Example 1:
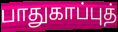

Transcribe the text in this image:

பாதுகாப்புத்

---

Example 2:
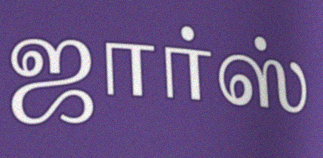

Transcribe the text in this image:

ஜார்ஸ்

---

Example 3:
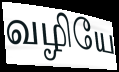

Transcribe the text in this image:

வழியே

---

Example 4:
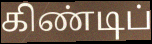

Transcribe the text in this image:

கிண்டிப்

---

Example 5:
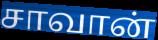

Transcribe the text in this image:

சாவான்